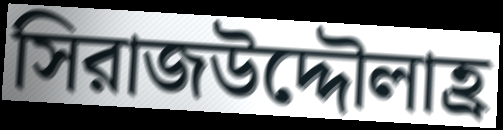
সিরাজউদ্দৌলাহ্র